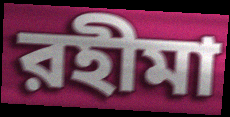
রহীমা